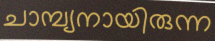
ചാമ്പ്യനായിരുന്ന